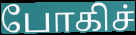
போகிச்